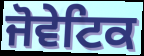
ਜੋਵੇਟਿਕ